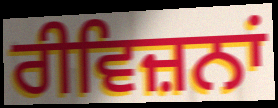
ਰੀਵਿਜ਼ਨਾਂ